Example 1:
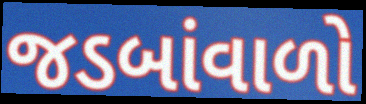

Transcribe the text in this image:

જડબાંવાળો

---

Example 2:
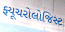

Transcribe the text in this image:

ફ્યૂચરોલોજિસ્ટ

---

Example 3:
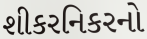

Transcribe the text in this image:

શીકરનિકરનો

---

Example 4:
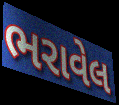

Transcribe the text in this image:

ભરાવેલ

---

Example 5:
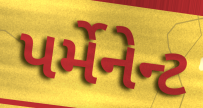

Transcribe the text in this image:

પર્મેનેન્ટ